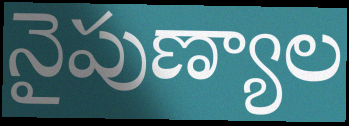
నైపుణ్యాల